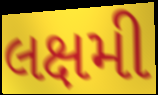
લક્ષમી